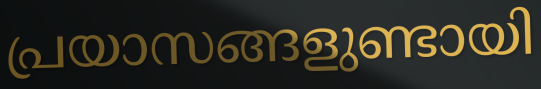
പ്രയാസങ്ങളുണ്ടായി